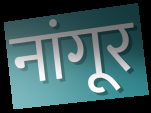
नांगूर